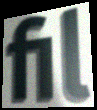
fil